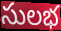
సులభ